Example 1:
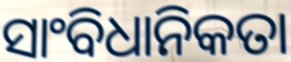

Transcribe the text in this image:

ସାଂବିଧାନିକତା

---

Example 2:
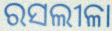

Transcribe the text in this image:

ରସଲୀଳା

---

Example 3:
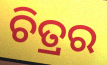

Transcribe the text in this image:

ଚିତ୍ରର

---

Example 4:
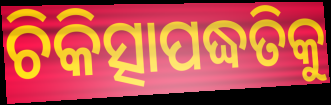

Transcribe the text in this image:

ଚିକିତ୍ସାପଦ୍ଧତିକୁ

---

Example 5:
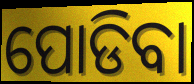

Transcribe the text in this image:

ପୋଡିବା